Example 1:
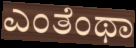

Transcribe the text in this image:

ಎಂತೆಂಥಾ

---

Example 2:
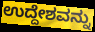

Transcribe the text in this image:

ಉದ್ದೇಶವನ್ನು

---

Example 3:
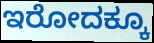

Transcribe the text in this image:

ಇರೋದಕ್ಕೂ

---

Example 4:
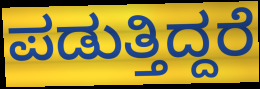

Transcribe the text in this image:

ಪಡುತ್ತಿದ್ದರೆ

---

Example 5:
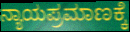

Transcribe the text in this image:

ನ್ಯಾಯಪ್ರಮಾಣಕ್ಕೆ